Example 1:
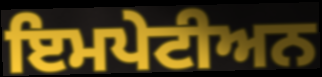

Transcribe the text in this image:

ਇਮਪੇਟੀਅਨ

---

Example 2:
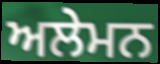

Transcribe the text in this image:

ਅਲੇਮਨ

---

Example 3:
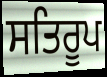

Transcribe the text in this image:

ਸਤਿਰੂਪ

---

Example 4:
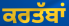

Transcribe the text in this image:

ਕਰਤੱਬਾਂ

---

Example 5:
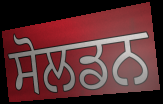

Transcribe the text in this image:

ਸੋਲਡਨ